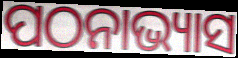
ପଠନାଭ୍ୟାସ